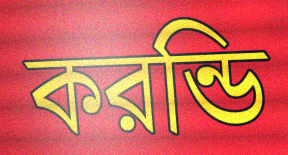
করন্ডি